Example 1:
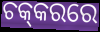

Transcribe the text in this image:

ଚକ୍‌କରରେ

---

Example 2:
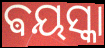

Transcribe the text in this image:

ଵୟସ୍କା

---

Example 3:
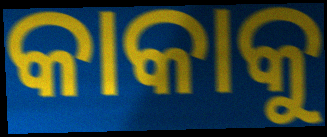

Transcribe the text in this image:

କାକାକୁ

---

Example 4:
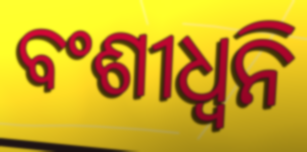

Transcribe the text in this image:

ବଂଶୀଧ୍ବନି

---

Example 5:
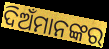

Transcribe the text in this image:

ଦିଅଁମାନଙ୍କର